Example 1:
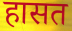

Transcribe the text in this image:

हासत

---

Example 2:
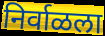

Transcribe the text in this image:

निर्वाळला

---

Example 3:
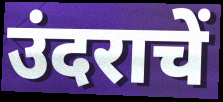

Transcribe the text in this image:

उंदराचें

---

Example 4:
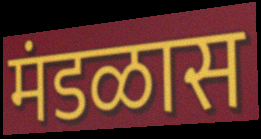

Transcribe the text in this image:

मंडळास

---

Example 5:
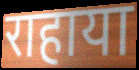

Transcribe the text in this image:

राहाया